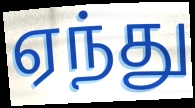
ஏந்து